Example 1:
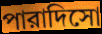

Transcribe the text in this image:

পারাদিসো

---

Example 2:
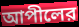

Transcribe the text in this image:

আপীলের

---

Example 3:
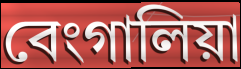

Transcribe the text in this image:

বেংগালিয়া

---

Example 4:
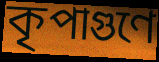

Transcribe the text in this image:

কৃপাগুণে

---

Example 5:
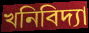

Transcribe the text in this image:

খনিবিদ্যা